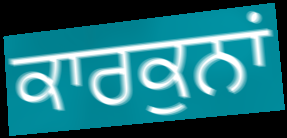
ਕਾਰਕੁਨਾਂ